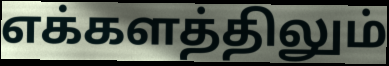
எக்களத்திலும்